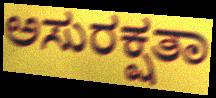
ಅಸುರಕ್ಷತಾ